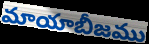
మాయాబీజము